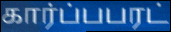
கார்ப்பபரட்